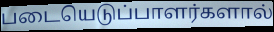
படையெடுப்பாளர்களால்